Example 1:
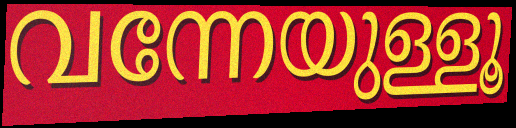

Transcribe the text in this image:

വന്നേയുള്ളൂ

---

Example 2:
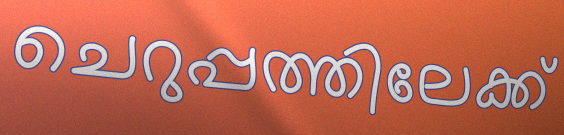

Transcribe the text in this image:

ചെറുപ്പത്തിലേക്ക്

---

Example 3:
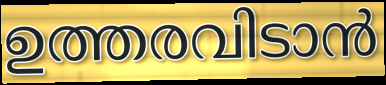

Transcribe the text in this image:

ഉത്തരവിടാൻ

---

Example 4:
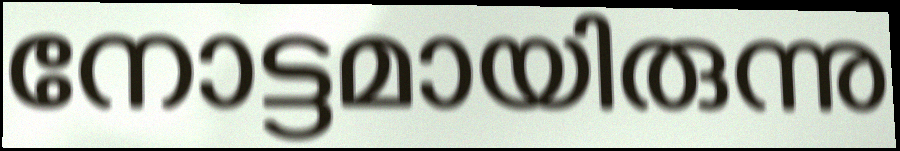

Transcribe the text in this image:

നോട്ടമായിരുന്നു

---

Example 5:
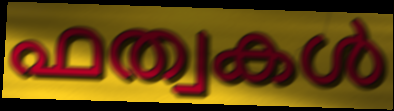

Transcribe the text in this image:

ഫത്വകൾ